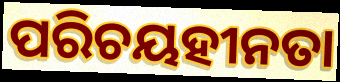
ପରିଚୟହୀନତା